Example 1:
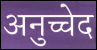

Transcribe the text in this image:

अनुच्चेद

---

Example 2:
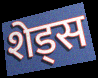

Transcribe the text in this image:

शेड्स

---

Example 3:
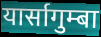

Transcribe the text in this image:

यार्सागुम्बा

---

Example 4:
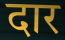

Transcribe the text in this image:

दार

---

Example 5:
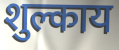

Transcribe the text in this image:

शुल्काय